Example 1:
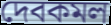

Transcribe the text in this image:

দেবকমল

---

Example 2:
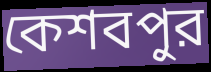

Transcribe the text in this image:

কেশবপুর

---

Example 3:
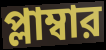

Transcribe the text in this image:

প্লাম্বার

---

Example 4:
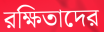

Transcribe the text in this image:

রক্ষিতাদের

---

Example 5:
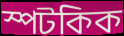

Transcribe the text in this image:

স্পটকিক